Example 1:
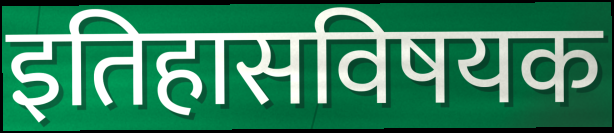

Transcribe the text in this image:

इतिहासविषयक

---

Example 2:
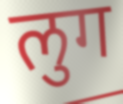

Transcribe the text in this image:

लुग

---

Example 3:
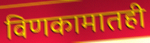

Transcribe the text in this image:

विणकामातही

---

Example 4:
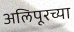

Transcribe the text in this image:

अलिपूरच्या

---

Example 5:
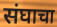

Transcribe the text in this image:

संघाचा